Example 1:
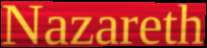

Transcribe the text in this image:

Nazareth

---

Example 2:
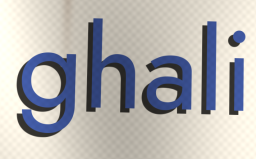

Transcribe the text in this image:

ghali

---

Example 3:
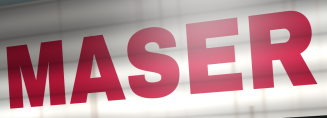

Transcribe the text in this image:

MASER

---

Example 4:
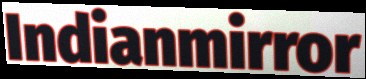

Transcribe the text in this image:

Indianmirror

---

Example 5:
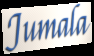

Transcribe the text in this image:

Jumala